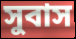
সুবাস